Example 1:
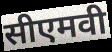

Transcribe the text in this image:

सीएमवी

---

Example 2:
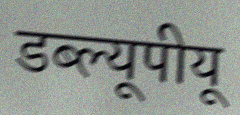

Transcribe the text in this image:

डब्ल्यूपीयू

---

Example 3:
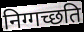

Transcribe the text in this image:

निग्गच्छति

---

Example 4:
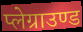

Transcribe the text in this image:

प्लेग्राउण्ड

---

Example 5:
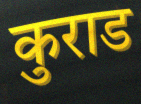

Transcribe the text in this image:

कुराड